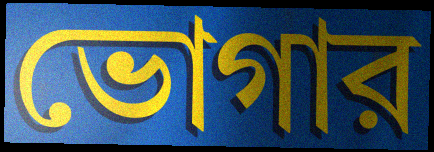
ভোগার